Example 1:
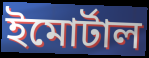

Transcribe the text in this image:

ইমোর্টাল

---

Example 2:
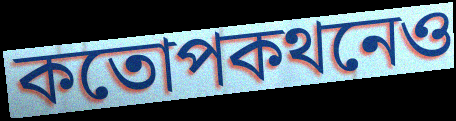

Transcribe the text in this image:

কতোপকথনেও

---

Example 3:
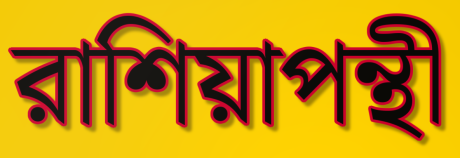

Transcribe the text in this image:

রাশিয়াপন্থী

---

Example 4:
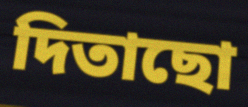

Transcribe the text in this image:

দিতাছো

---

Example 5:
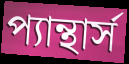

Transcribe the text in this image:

প্যান্থার্স